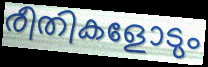
രീതികളോടും